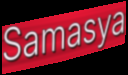
Samasya